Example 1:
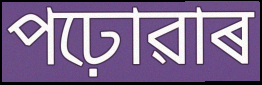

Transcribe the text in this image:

পঢ়োৱাৰ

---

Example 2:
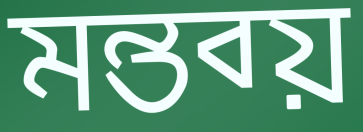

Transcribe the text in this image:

মন্তব্য়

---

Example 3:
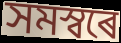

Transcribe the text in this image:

সমস্বৰে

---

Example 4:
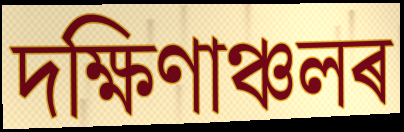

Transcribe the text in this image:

দক্ষিণাঞ্চলৰ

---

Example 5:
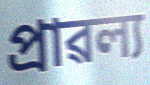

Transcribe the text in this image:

প্ৰাৱল্য